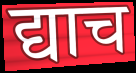
द्याच